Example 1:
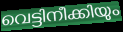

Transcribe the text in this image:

വെട്ടിനീക്കിയും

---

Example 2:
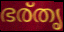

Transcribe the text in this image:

ഭര്തൃ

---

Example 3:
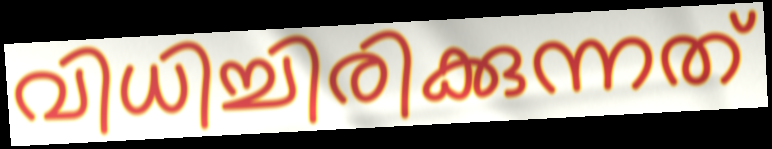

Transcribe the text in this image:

വിധിച്ചിരിക്കുന്നത്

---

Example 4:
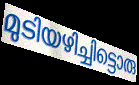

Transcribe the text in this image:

മുടിയഴിച്ചിട്ടൊരു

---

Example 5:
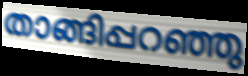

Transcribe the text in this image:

താങ്ങിപ്പറഞ്ഞു